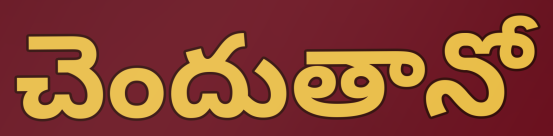
చెందుతానో